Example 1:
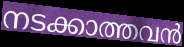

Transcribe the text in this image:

നടക്കാത്തവൻ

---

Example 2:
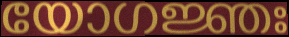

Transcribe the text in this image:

യോഗജ്ഞഃ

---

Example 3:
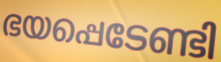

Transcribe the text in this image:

ഭയപ്പെടേണ്ടി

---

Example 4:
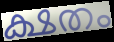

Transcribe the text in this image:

ക്ഷതം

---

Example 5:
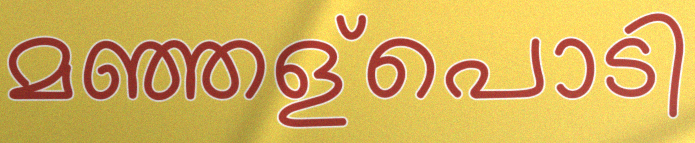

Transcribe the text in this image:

മഞ്ഞള്പൊടി